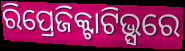
ରିପ୍ରେଜିକ୍ଟାଟିଭ୍ସରେ